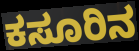
ಕಸೂರಿನ